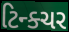
ટિન્ક્ચર